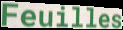
Feuilles